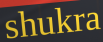
shukra